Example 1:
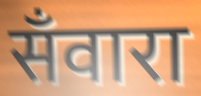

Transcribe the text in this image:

सँवारा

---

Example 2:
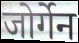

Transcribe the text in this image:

जोर्गेन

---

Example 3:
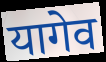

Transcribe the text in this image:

यागेव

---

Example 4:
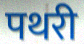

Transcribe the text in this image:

पथरी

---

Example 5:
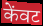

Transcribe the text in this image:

केंवट